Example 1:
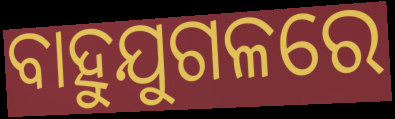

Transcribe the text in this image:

ବାହୁଯୁଗଳରେ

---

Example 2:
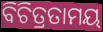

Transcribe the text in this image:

ବିଚିତ୍ରତାମୟ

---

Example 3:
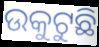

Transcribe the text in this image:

ଉକୁଟୁଛି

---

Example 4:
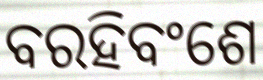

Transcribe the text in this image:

ବରହିବଂଶେ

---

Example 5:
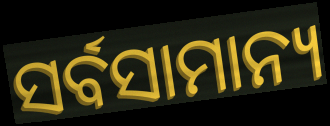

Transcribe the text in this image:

ସର୍ବସାମାନ୍ୟ